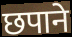
छपाने